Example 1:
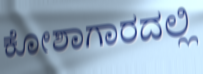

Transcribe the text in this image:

ಕೋಶಾಗಾರದಲ್ಲಿ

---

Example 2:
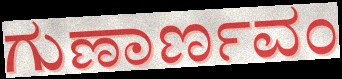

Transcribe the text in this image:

ಗುಣಾರ್ಣವಂ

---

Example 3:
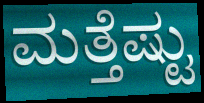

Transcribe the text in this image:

ಮತ್ತೆಷ್ಟು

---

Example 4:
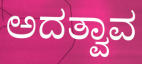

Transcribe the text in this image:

ಅದತ್ವಾವ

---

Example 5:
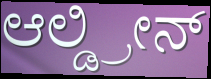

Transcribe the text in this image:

ಆಲ್ಡ್ರೀನ್